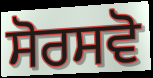
ਸੋਰਸਵੋ